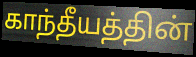
காந்தீயத்தின்